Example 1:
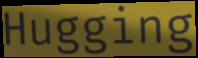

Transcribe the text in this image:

Hugging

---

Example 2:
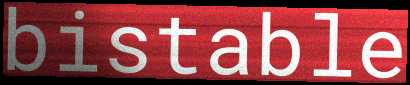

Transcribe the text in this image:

bistable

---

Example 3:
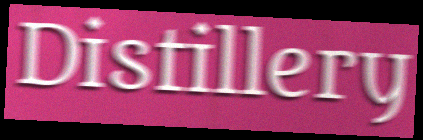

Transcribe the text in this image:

Distillery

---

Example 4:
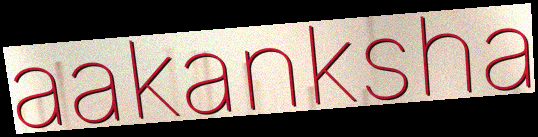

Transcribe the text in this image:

aakanksha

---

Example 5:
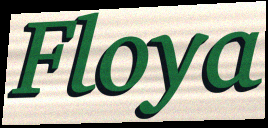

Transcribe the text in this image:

Floya